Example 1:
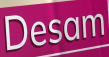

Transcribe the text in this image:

Desam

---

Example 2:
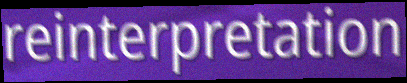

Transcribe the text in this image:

reinterpretation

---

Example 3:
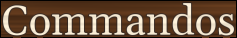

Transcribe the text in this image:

Commandos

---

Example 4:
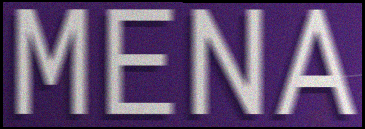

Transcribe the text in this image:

MENA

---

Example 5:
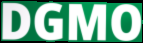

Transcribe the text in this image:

DGMO